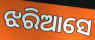
ଝରିଆସେ